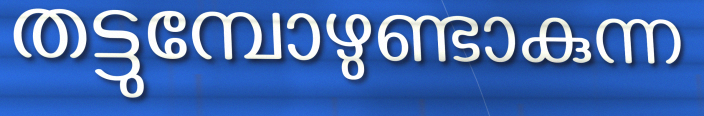
തട്ടുമ്പോഴുണ്ടാകുന്ന